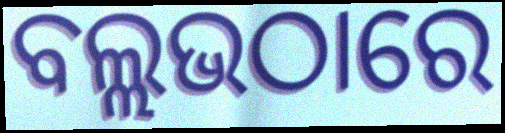
ବଲ୍ଲଭଠାରେ